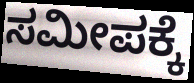
ಸಮೀಪಕ್ಕೆ